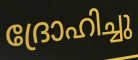
ദ്രോഹിച്ചു